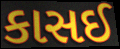
કાસઈ